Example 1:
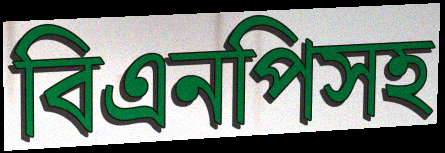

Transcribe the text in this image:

বিএনপিসহ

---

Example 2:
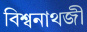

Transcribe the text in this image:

বিশ্বনাথজী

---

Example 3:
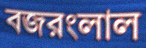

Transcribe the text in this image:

বজরংলাল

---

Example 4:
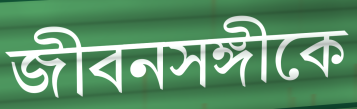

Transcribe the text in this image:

জীবনসঙ্গীকে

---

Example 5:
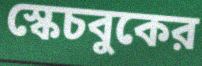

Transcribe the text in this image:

স্কেচবুকের